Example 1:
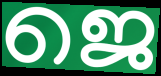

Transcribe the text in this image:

ജെ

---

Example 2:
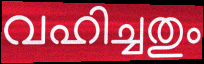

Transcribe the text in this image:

വഹിച്ചതും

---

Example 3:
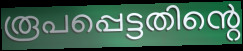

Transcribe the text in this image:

രൂപപ്പെട്ടതിന്റെ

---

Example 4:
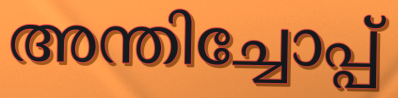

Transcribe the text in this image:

അന്തിച്ചോപ്പ്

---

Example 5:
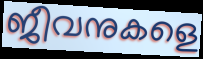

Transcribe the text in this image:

ജീവനുകളെ